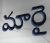
మారై